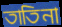
তাতিনা